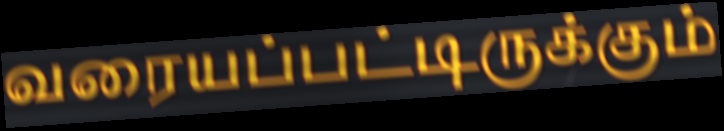
வரையப்பட்டிருக்கும்